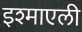
इश्माएली